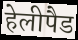
हेलीपैड